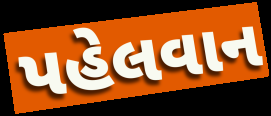
પહેલવાન